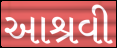
આશ્રવી